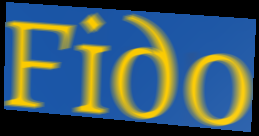
Fido